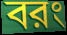
বরং